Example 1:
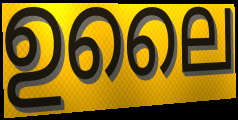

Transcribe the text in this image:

ഉലൈ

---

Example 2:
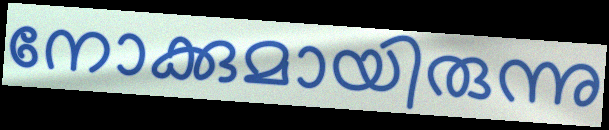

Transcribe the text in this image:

നോക്കുമായിരുന്നു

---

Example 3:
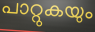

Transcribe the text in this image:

പാറ്റുകയും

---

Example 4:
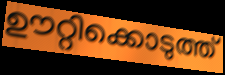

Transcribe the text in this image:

ഊറ്റിക്കൊടുത്ത്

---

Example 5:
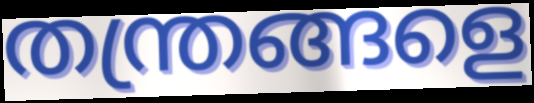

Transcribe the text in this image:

തന്ത്രങ്ങളെ